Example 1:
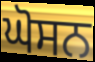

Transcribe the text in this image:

ਘੋਸਨ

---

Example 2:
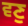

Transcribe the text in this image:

ਵਣੁ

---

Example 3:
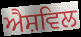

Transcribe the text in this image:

ਐਸ਼ਵਿਲ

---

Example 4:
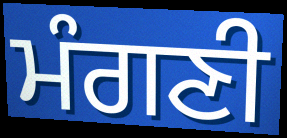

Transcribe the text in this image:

ਮੰਗਣੀ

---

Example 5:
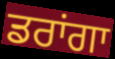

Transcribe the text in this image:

ਡਰਾਂਗਾ